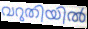
വറുതിയിൽ